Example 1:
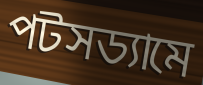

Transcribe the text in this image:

পটসড্যামে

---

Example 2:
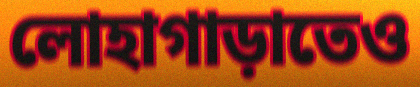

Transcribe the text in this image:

লোহাগাড়াতেও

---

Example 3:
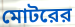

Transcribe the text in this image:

মোটরের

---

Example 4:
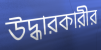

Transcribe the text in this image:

উদ্ধারকারীর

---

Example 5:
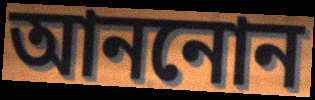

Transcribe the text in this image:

আননোন